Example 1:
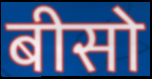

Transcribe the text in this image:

बीसो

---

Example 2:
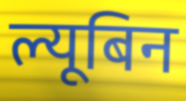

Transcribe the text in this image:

ल्यूबिन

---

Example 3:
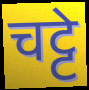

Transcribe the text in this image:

चट्टे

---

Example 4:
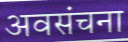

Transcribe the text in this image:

अवसंचना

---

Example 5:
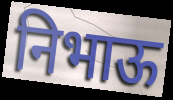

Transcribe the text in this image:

निभाऊ